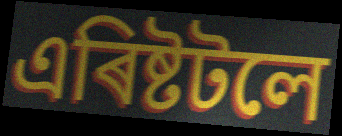
এৰিষ্টটলে